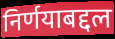
निर्णयाबद्दल